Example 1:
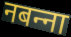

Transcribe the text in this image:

नबन्ना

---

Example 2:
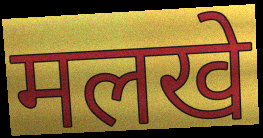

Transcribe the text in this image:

मलखे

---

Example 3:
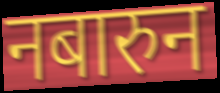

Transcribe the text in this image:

नबारुन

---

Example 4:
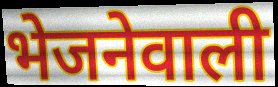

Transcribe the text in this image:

भेजनेवाली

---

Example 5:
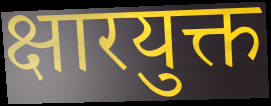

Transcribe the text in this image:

क्षारयुक्त